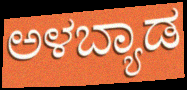
ಅಳಬ್ಯಾಡ